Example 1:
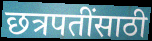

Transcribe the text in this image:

छत्रपतींसाठी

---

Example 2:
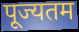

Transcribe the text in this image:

पूज्यतम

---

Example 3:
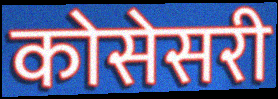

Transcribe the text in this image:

कोसेसरी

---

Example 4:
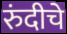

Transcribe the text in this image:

रुंदीचे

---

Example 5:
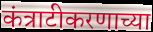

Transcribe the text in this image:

कंत्राटीकरणाच्या